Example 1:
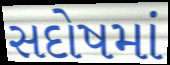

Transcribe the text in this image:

સદોષમાં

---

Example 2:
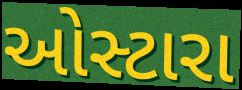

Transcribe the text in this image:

ઓસ્ટારા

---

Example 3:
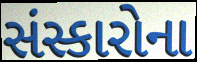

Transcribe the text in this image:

સંસ્કારોના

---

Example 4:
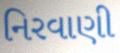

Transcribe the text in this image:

નિરવાણી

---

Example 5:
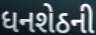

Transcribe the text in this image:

ધનશેઠની